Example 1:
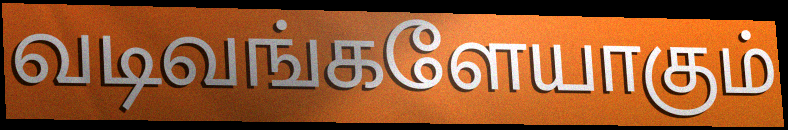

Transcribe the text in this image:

வடிவங்களேயாகும்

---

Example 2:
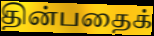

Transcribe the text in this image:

தின்பதைக்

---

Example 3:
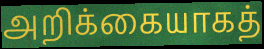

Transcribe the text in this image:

அறிக்கையாகத்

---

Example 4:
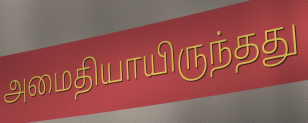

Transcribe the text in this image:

அமைதியாயிருந்தது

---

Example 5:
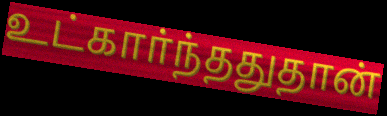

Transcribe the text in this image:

உட்கார்ந்ததுதான்